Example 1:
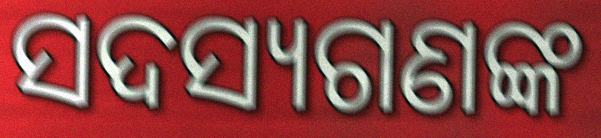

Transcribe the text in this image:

ସଦସ୍ୟଗଣଙ୍କ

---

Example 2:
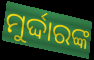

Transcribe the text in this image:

ମୁର୍ଦ୍ଦାରଙ୍କ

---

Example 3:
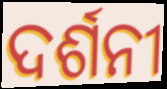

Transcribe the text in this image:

ଦର୍ଶନୀ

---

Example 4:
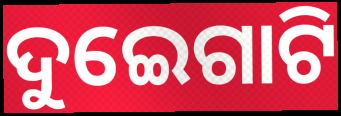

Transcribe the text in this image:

ଦୁଇେଗାଟି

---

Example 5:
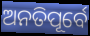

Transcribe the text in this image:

ଅନତିପୂର୍ବେ